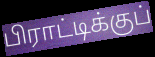
பிராட்டிக்குப்